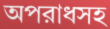
অপরাধসহ